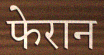
फेरान